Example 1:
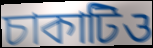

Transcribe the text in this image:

চাকাটিও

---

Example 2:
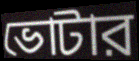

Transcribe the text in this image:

ভোটার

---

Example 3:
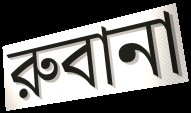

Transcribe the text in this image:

রুবানা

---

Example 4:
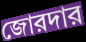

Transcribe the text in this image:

জোরদার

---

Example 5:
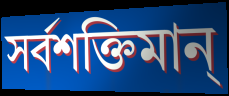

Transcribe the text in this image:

সর্বশক্তিমান্